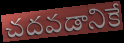
చదవడానికే